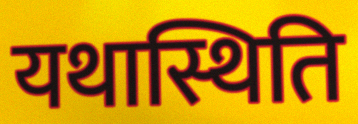
यथास्थिति